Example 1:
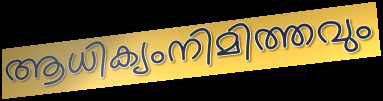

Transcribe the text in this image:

ആധിക്യംനിമിത്തവും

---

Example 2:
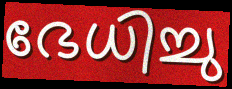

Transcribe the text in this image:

ഭേധിച്ചു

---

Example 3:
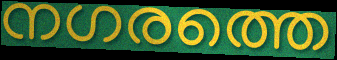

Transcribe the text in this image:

നഗരത്തെ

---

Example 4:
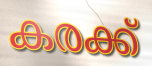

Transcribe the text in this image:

കരക്ക്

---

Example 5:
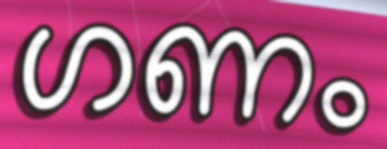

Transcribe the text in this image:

ഗണം